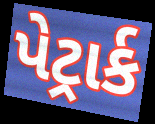
પેટ્રાર્ક